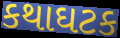
કથાઘટક